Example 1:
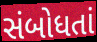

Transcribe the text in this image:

સંબોધતાં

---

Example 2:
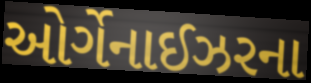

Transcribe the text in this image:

ઓર્ગેનાઈઝરના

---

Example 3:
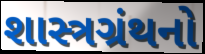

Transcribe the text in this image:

શાસ્ત્રગ્રંથનો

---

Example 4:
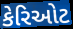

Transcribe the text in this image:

કેરિઓટ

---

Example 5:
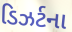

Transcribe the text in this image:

ડિઝર્ટના